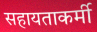
सहायताकर्मी